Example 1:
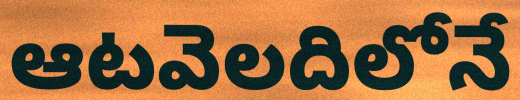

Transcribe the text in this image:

ఆటవెలదిలోనే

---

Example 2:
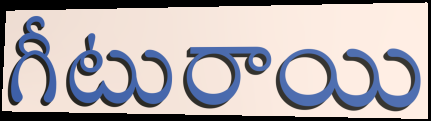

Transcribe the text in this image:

గీటురాయి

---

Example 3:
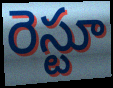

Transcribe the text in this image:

రెస్టూ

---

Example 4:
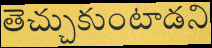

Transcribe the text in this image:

తెచ్చుకుంటాడని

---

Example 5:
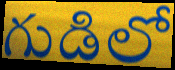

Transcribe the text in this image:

గుడిలో